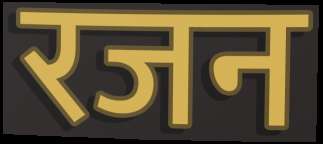
रजन